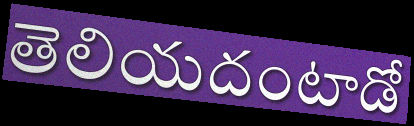
తెలియదంటాడో